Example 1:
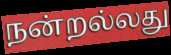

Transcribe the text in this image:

நன்றல்லது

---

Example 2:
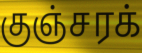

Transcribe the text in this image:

குஞ்சரக்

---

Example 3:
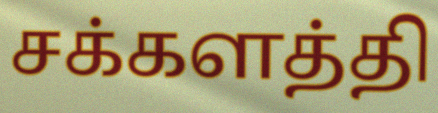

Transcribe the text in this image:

சக்களத்தி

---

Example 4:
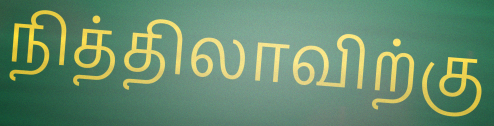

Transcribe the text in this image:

நித்திலாவிற்கு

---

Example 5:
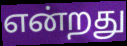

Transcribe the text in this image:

என்றது